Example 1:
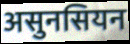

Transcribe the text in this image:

असुनसियन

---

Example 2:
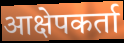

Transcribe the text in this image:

आक्षेपकर्ता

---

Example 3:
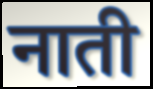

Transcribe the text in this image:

नाती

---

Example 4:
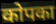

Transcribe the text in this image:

कोपका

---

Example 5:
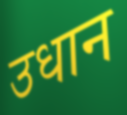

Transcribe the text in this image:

उधान